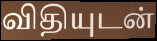
விதியுடன்